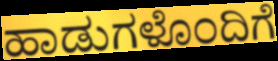
ಹಾಡುಗಳೊಂದಿಗೆ